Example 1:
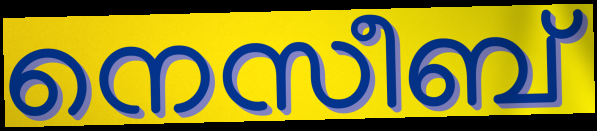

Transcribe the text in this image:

നെസീബ്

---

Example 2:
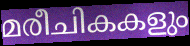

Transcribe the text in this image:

മരീചികകളും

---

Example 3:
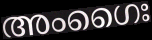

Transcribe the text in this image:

അംഗൈഃ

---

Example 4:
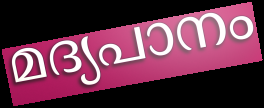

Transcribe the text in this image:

മദ്യപാനം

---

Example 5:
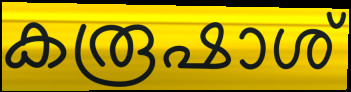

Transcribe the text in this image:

കരൂഷാശ്